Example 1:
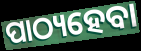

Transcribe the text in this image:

ପାଠ୍ୟହେବା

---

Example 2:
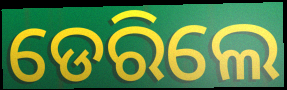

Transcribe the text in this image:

ଡେରିଲେ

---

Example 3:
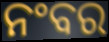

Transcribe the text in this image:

ନଂବର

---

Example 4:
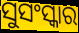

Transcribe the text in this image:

ସୁସଂସ୍କାର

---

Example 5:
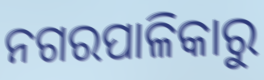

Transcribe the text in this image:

ନଗରପାଳିକାରୁ